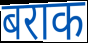
बराक